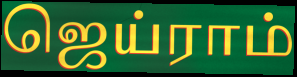
ஜெய்ராம்